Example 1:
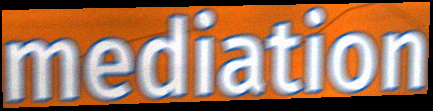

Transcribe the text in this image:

mediation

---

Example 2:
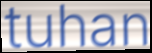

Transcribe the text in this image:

tuhan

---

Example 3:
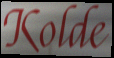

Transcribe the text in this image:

Kolde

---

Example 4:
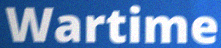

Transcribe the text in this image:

Wartime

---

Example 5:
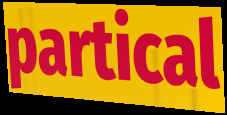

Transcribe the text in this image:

partical